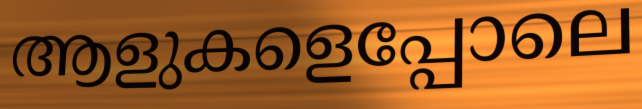
ആളുകളെപ്പോലെ